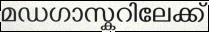
മഡഗാസ്കറിലേക്ക്